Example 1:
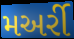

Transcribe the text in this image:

મઅર્રી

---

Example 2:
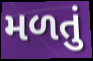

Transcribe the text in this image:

મળતું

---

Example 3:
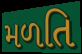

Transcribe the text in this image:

મળતિ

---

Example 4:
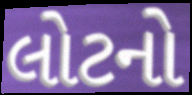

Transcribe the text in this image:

લોટનો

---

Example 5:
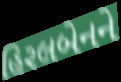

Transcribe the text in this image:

હિરલબેનને